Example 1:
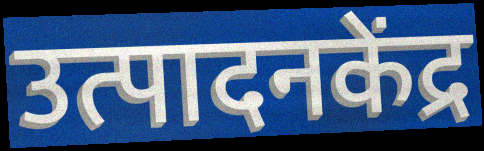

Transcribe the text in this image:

उत्पादनकेंद्र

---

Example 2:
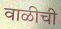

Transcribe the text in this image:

वाळीची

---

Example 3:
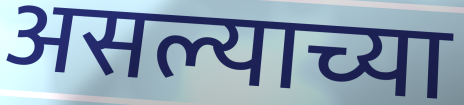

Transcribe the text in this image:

असल्याच्या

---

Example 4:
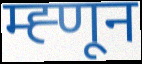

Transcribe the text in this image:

म्ह्णून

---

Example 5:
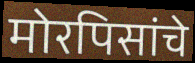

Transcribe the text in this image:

मोरपिसांचे